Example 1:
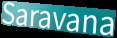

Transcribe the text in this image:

Saravana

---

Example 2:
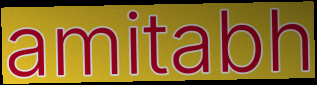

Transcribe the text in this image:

amitabh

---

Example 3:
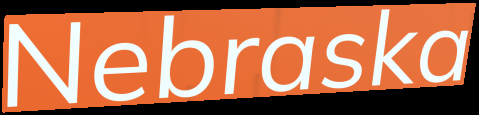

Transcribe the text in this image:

Nebraska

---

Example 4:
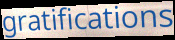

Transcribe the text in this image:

gratifications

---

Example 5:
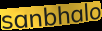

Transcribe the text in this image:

sanbhalo